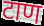
टाण